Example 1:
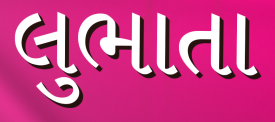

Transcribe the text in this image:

લુભાતા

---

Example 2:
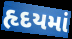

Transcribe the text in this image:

હૃદયમાં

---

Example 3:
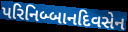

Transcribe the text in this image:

પરિનિબ્બાનદિવસેન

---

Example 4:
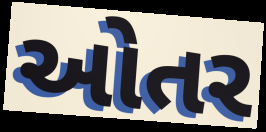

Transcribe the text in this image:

ઓતર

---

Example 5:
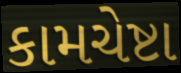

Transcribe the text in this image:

કામચેષ્ટા